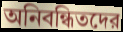
অনিবন্ধিতদের